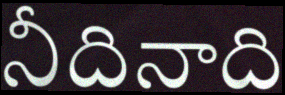
నీదినాది